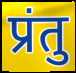
प्रंतु